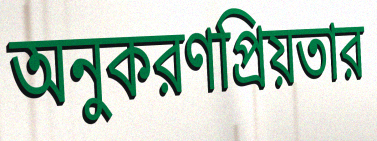
অনুকরণপ্রিয়তার